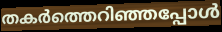
തകർത്തെറിഞ്ഞപ്പോൾ